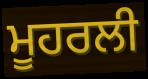
ਮੂਹਰਲੀ